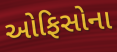
ઓફિસોના